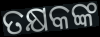
ତକ୍ଷକଙ୍କ